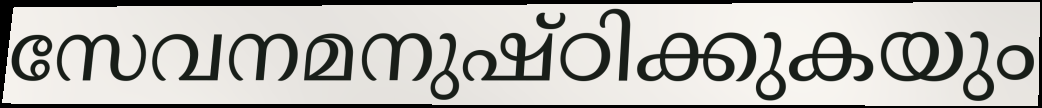
സേവനമനുഷ്ഠിക്കുകയും